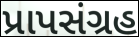
પ્રાપસંગ્રહ